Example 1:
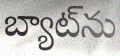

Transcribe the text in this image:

బ్యాట్‌ను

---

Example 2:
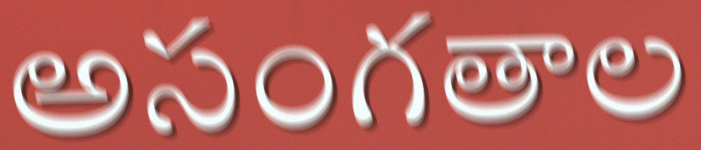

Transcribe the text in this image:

అసంగతాల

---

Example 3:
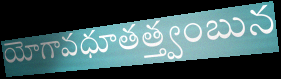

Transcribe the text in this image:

యోగావధూతత్త్వంబున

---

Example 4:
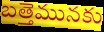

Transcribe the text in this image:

బత్తెమునకు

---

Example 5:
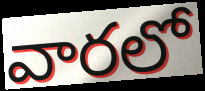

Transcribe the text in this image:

వారలో